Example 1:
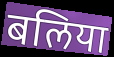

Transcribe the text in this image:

बलिया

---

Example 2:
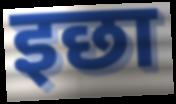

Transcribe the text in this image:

इछा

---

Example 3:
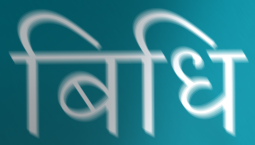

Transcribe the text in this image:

बिधि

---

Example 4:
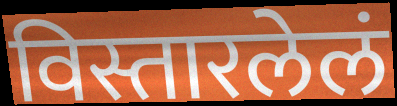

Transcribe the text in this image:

विस्तारलेलं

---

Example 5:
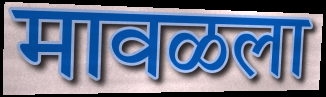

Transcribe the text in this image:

मावळला